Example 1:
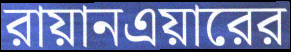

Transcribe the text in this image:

রায়ানএয়ারের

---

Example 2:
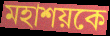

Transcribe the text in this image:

মহাশয়কে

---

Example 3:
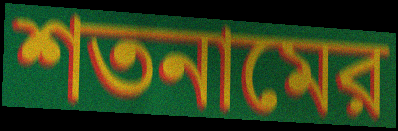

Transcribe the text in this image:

শতনামের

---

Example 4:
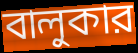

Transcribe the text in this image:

বালুকার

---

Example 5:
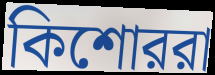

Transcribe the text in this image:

কিশোররা